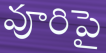
వూరిపై